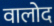
वालोद